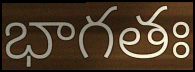
భాగతః